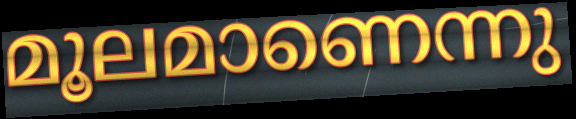
മൂലമാണെന്നു